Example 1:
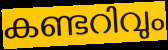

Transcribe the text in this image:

കണ്ടറിവും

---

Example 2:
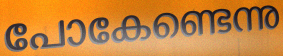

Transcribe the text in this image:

പോകേണ്ടെന്നു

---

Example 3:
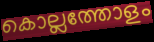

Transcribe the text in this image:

കൊല്ലത്തോളം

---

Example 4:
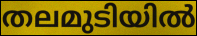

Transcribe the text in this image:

തലമുടിയിൽ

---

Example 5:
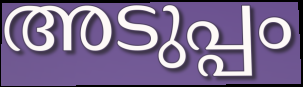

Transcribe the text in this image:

അടുപ്പം